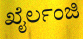
ಖೈರ್ಲಂಜಿ